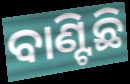
ବାଣ୍ଟିଛି